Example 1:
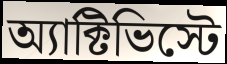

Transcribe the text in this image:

অ্যাক্টিভিস্টে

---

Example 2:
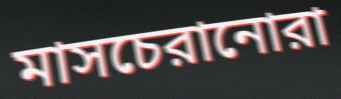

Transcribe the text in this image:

মাসচেরানোরা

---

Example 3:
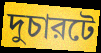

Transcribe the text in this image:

দুচারটে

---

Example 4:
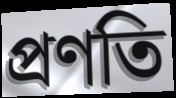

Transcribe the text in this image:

প্রণতি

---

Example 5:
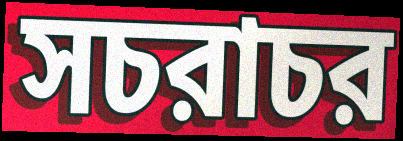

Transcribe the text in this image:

সচরাচর